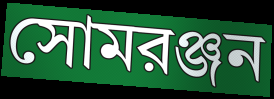
সোমরঞ্জন